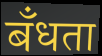
बँधता